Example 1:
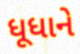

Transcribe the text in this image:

ધૂધાને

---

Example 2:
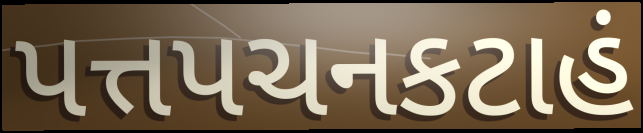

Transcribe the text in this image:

પત્તપચનકટાહં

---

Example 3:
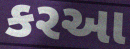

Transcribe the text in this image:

કરઆ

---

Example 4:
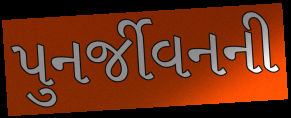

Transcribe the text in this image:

પુનર્જીવનની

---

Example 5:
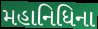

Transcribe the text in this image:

મહાનિધિના